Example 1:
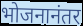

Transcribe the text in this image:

भोजनानंतर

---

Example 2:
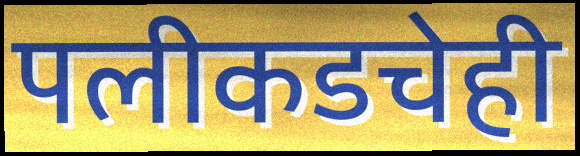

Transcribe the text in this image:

पलीकडचेही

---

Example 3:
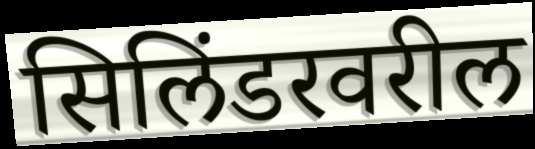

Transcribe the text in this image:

सिलिंडरवरील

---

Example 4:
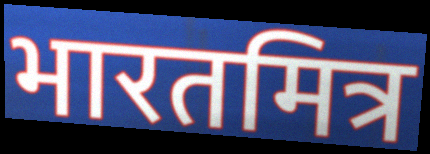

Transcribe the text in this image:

भारतमित्र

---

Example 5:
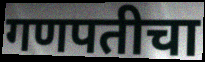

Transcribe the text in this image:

गणपतीचा